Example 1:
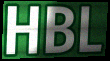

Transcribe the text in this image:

HBL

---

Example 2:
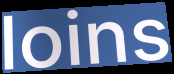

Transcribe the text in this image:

loins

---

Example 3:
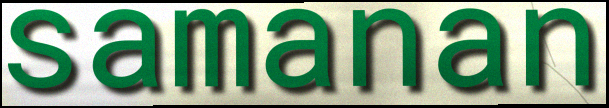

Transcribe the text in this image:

samanan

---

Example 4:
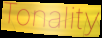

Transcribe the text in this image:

Tonality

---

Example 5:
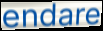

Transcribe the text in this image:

endare